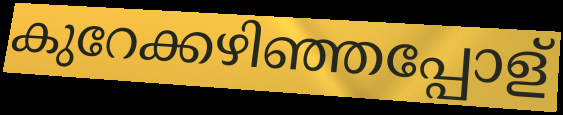
കുറേക്കഴിഞ്ഞപ്പോള്